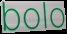
bolo